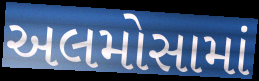
અલમોસામાં